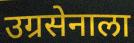
उग्रसेनाला